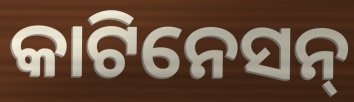
କାଟିନେସନ୍